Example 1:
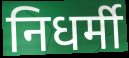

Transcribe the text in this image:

निधर्मी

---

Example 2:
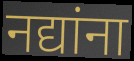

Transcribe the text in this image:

नद्यांना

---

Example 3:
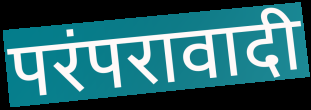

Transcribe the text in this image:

परंपरावादी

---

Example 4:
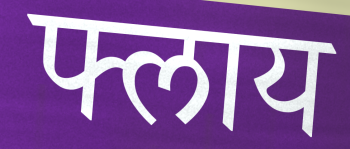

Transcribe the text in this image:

फ्लाय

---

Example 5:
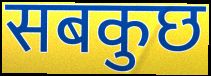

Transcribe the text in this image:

सबकुछ